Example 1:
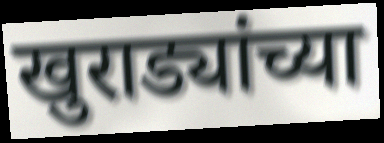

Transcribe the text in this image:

खुराड्यांच्या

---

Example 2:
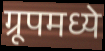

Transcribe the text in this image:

ग्रूपमध्ये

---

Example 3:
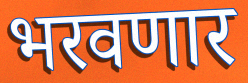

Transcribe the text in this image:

भरवणार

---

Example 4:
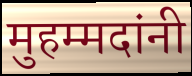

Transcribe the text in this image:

मुहम्मदांनी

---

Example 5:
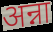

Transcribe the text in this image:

अन्ना